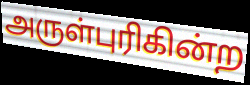
அருள்புரிகின்ற